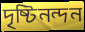
দৃষ্টিনন্দন